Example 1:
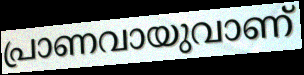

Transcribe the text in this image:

പ്രാണവായുവാണ്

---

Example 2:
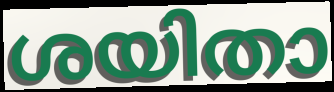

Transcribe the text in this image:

ശയിതാ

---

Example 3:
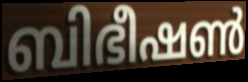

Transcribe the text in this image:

ബിഭീഷൺ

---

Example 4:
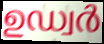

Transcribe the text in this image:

ഉഡ്വർ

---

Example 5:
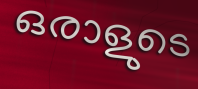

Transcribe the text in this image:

ഒരാളുടെ